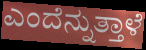
ಎಂದೆನ್ನುತ್ತಾಳೆ